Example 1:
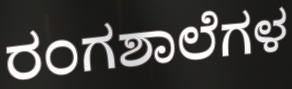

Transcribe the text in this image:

ರಂಗಶಾಲೆಗಳ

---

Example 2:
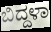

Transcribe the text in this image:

ಬಿದ್ದಳಾ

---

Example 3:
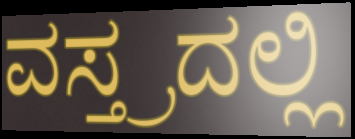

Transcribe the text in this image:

ವಸ್ತ್ರದಲ್ಲಿ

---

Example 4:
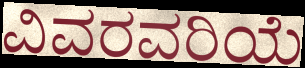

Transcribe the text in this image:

ವಿವರವರಿಯೆ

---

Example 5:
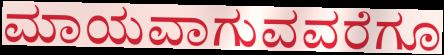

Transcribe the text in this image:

ಮಾಯವಾಗುವವರೆಗೂ